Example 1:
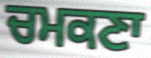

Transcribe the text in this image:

ਚਮਕਣਾ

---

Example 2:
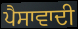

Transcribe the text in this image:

ਪੈਸਾਵਾਦੀ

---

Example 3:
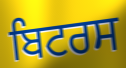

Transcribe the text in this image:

ਬਿਟਰਸ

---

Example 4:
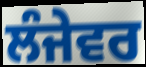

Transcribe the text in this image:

ਲੰਜੇਵਰ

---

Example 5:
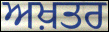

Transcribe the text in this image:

ਅਖ਼ਤਰ